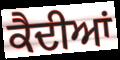
ਕੈਦੀਆਂ